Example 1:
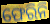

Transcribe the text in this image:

ଫେରିନି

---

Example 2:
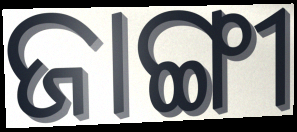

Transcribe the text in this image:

ଜାଙ୍ଗୀ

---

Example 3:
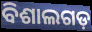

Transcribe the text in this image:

ବିଶାଲଗଡ଼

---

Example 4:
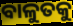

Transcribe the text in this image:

ବାଳୁତକୁ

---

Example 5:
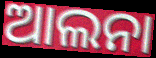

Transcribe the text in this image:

ଆଲନା